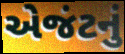
એજંટનું